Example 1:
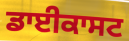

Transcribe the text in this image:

ਡਾਈਕਾਸਟ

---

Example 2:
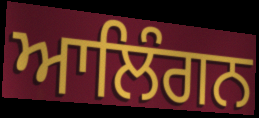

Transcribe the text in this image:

ਆਲਿੰਗਨ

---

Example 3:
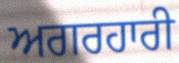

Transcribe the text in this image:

ਅਗਰਹਾਰੀ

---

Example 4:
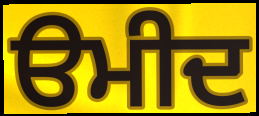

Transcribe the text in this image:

ੳਮੀਦ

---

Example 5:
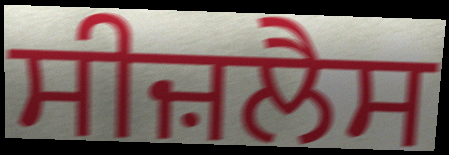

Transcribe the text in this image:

ਸੀਜ਼ਲੈਸ